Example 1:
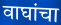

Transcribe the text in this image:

वाघांचा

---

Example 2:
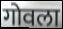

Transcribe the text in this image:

गोवला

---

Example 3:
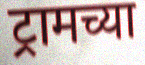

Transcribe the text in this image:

ट्रामच्या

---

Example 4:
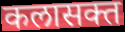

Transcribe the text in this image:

कलासक्त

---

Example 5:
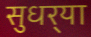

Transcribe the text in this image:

सुधर्‍या